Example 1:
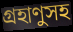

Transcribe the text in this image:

গ্রহাণুসহ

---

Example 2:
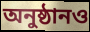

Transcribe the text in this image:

অনুষ্ঠানও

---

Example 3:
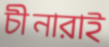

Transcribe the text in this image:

চীনারাই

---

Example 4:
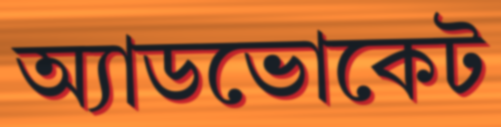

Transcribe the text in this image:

অ্যাডভোকেট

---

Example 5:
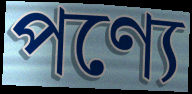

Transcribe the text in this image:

পণ্যে